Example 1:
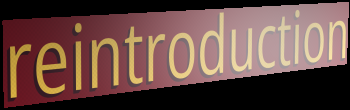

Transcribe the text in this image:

reintroduction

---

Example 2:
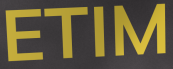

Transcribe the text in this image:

ETIM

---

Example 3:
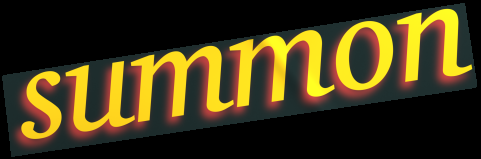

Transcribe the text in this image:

summon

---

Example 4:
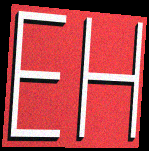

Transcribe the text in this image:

EH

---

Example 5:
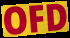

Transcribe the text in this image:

OFD